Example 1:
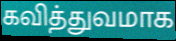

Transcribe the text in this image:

கவித்துவமாக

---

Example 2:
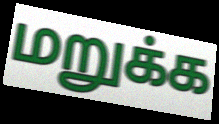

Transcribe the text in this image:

மறுக்க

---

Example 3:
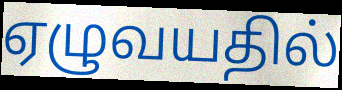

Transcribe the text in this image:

ஏழுவயதில்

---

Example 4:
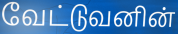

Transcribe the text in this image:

வேட்டுவனின்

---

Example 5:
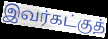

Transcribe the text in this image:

இவர்கட்குத்